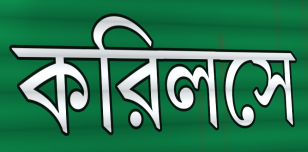
করিলসে